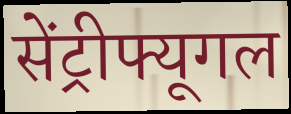
सेंट्रीफ्यूगल